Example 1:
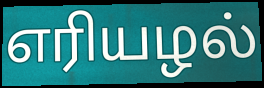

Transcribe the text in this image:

எரியழல்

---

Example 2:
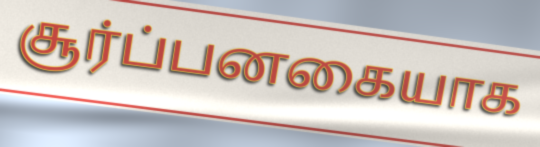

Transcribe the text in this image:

சூர்ப்பனகையாக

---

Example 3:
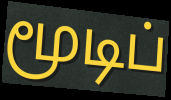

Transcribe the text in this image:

மூடிப்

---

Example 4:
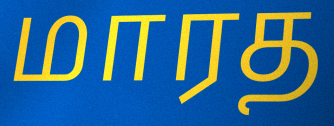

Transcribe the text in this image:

மாரத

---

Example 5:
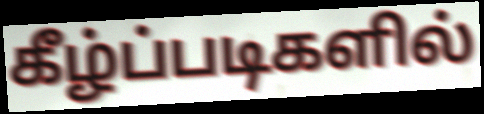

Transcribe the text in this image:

கீழ்ப்படிகளில்